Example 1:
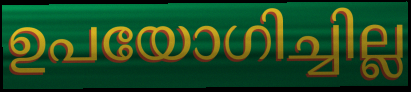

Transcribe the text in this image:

ഉപയോഗിച്ചില്ല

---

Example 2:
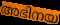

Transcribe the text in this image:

അഭിനയ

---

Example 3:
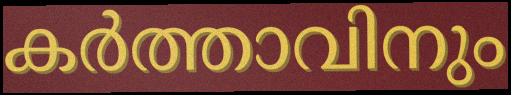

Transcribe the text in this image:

കർത്താവിനും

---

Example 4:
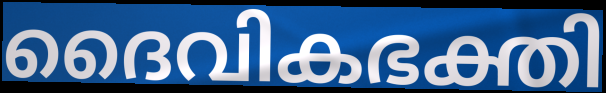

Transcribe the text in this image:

ദൈവികഭക്തി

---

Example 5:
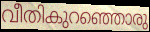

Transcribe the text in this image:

വീതികുറഞ്ഞൊരു